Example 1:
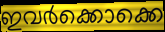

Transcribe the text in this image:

ഇവർക്കൊക്കെ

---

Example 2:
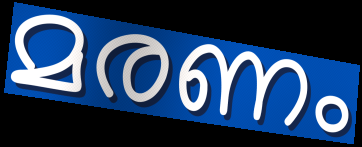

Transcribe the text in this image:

മരണം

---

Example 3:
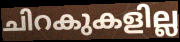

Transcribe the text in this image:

ചിറകുകളില്ല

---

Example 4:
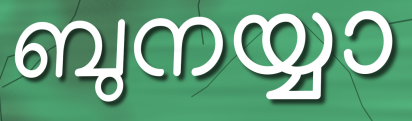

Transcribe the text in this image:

ബുനയ്യാ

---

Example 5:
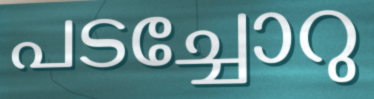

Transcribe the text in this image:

പടച്ചോറു